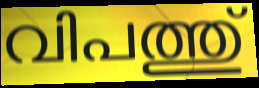
വിപത്തു്